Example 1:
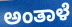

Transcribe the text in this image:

ಅಂತಾಳೆ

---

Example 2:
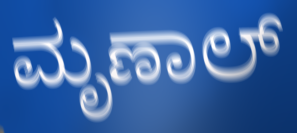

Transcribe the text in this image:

ಮೃಣಾಲ್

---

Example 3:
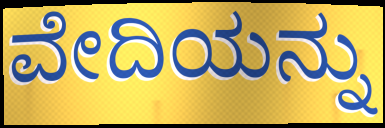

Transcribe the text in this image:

ವೇದಿಯನ್ನು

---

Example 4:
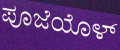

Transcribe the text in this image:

ಪೂಜೆಯೊಳ್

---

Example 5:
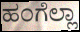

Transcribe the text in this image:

ಹಂಗೆಲ್ಲಾ